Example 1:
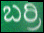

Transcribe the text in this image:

ಬರ್ರಿ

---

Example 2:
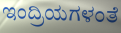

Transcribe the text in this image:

ಇಂದ್ರಿಯಗಳಂತೆ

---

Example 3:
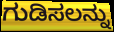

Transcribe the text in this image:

ಗುಡಿಸಲನ್ನು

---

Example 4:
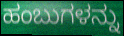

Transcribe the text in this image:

ಹಂಬುಗಳನ್ನು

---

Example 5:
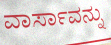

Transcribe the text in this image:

ವಾರ್ಸಾವನ್ನು